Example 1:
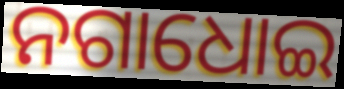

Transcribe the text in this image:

ନଗାଧୋଇ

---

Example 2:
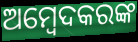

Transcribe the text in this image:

ଅମ୍ବେଦକରଙ୍କ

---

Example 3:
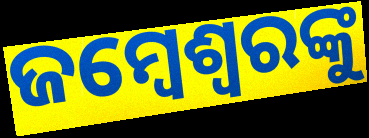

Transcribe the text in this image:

ଜମ୍ବେଶ୍ୱରଙ୍କୁ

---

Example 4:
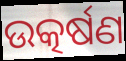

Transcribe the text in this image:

ଉତ୍କର୍ଷଣ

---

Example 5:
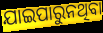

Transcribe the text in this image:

ଯାଇପାରୁନଥିବା